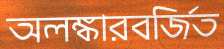
অলঙ্কারবর্জিত